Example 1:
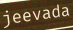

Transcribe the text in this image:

jeevada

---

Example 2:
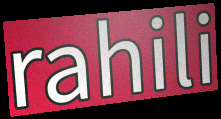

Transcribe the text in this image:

rahili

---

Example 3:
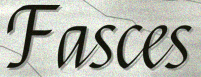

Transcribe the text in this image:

Fasces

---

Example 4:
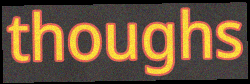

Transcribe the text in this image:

thoughs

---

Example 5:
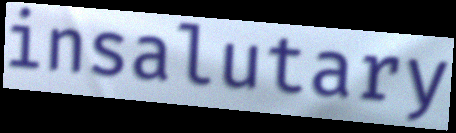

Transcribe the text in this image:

insalutary